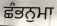
ਛੰਭਨੁਮਾ